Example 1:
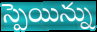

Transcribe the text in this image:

స్పెయిన్ను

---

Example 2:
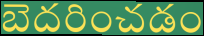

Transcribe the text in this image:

బెదరించడం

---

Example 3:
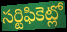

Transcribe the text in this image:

సర్టిఫికెట్లో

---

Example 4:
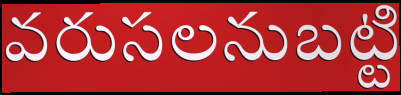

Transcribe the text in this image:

వరుసలనుబట్టి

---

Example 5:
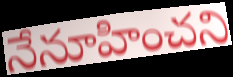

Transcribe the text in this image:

నేనూహించని